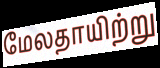
மேலதாயிற்று